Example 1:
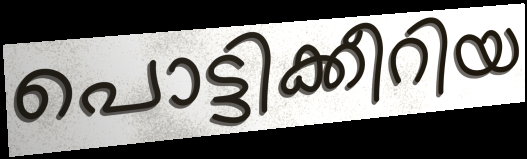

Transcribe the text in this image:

പൊട്ടിക്കീറിയ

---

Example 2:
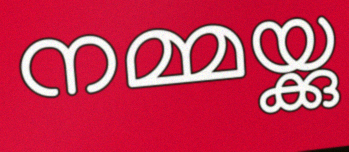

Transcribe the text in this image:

നമ്മയ്ക്കു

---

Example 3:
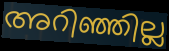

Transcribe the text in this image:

അറിഞ്ഞില്ല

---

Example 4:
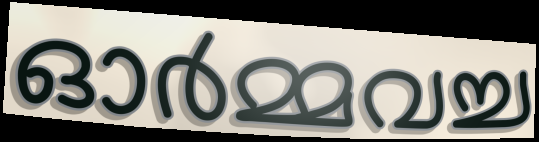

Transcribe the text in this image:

ഓർമ്മവച്ച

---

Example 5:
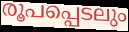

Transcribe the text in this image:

രൂപപ്പെടലും